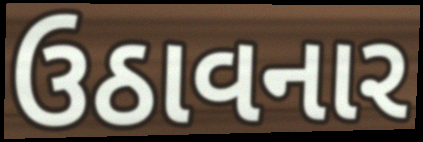
ઉઠાવનાર